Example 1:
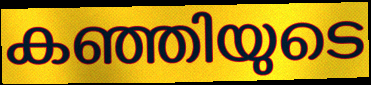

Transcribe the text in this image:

കഞ്ഞിയുടെ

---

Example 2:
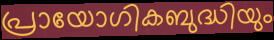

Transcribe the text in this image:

പ്രായോഗികബുദ്ധിയും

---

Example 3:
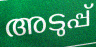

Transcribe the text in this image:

അടുപ്പ്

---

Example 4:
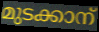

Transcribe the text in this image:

മുടക്കാന്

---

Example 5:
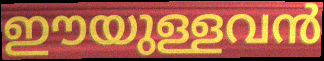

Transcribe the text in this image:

ഈയുള്ളവൻ